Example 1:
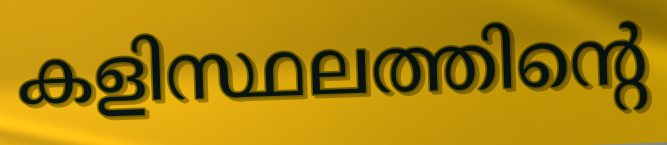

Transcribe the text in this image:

കളിസ്ഥലത്തിന്റെ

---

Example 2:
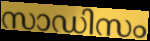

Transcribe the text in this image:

സാഡിസം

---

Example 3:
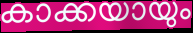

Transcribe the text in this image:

കാക്കയായും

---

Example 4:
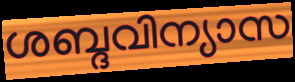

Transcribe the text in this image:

ശബ്ദവിന്യാസ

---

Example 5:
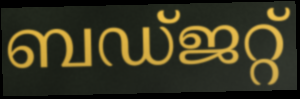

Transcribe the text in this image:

ബഡ്ജറ്റ്